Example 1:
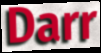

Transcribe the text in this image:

Darr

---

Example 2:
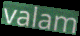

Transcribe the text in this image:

valam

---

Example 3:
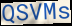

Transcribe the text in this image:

QSVMs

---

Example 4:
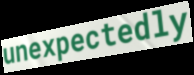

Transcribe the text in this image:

unexpectedly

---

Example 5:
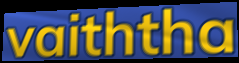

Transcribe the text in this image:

vaiththa